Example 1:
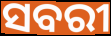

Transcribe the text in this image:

ସବରୀ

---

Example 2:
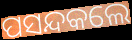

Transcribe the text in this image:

ପସନ୍ଦକଲେ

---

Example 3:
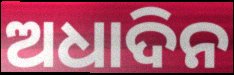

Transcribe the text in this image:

ଅଧାଦିନ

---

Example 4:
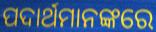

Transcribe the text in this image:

ପଦାର୍ଥମାନଙ୍କରେ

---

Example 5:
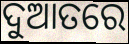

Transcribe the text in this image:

ଦୁଆତରେ